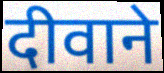
दीवाने